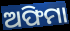
ଅଫିମା